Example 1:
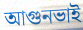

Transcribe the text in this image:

আগুনভাই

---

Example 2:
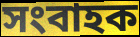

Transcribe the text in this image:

সংবাহক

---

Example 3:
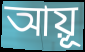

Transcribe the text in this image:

আয়ূ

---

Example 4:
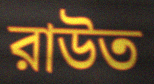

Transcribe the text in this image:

রাউত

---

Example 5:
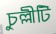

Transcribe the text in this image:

চুল্লীটি